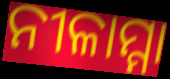
ନୀଳାମ୍ମା